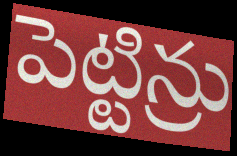
పెట్టిన్రు